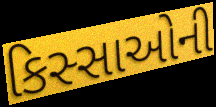
કિસ્સાઓની